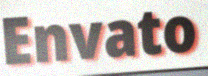
Envato